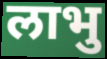
लाभु